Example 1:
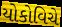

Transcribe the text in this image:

યોકોવિચે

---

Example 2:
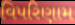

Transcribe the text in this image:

વિપરિણામ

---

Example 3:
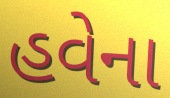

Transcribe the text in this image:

હવેના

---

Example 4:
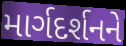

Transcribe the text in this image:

માર્ગદર્શનને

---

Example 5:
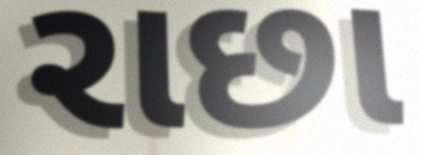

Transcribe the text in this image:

રાછા